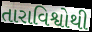
તારાવિશ્વોથી